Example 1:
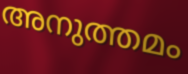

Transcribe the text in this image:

അനുത്തമം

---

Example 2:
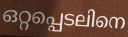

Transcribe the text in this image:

ഒറ്റപ്പെടലിനെ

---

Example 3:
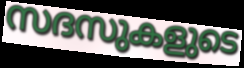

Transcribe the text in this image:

സദസുകളുടെ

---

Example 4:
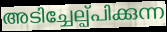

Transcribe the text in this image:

അടിച്ചേല്പ്പിക്കുന്ന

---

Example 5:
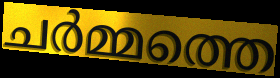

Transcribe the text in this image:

ചർമ്മത്തെ